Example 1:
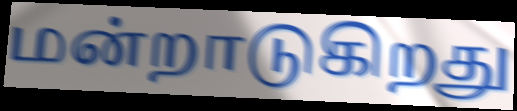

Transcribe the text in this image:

மன்றாடுகிறது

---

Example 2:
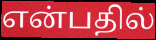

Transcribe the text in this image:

என்பதில்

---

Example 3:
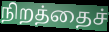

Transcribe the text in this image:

நிறத்தைச்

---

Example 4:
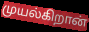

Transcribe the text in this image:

முயல்கிறான்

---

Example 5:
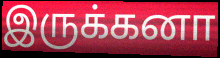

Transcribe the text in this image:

இருக்கனா